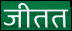
जीतत